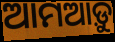
ଆମଆଡ଼ୁ